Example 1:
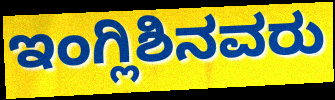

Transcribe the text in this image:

ಇಂಗ್ಲಿಶಿನವರು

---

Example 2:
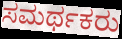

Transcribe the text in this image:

ಸಮರ್ಥಕರು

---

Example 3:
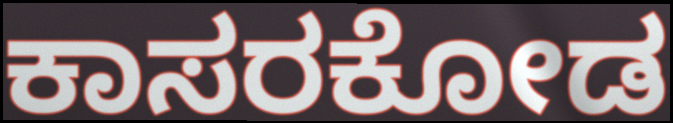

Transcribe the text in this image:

ಕಾಸರಕೋಡ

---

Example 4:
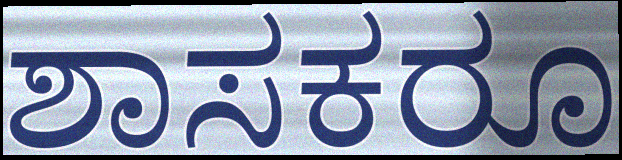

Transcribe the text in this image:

ಶಾಸಕರೂ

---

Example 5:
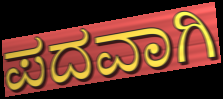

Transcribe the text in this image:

ಪದವಾಗಿ